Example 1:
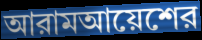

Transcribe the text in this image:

আরামআয়েশের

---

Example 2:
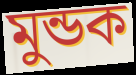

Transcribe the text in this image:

মুন্ডক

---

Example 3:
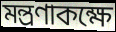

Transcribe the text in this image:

মন্ত্রণাকক্ষে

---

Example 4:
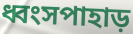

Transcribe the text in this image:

ধ্বংসপাহাড়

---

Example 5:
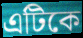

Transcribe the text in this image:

এটিকে